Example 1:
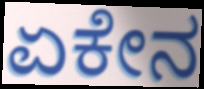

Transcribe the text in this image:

ಏಕೇನ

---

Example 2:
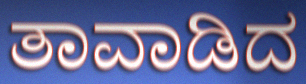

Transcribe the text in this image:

ತಾವಾಡಿದ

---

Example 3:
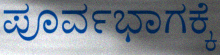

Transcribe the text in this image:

ಪೂರ್ವಭಾಗಕ್ಕೆ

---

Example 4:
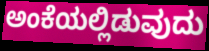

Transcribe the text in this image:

ಅಂಕೆಯಲ್ಲಿಡುವುದು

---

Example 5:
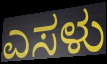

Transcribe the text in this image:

ಎಸಳು